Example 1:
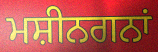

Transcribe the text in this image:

ਮਸ਼ੀਨਗਨਾਂ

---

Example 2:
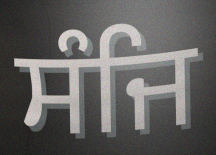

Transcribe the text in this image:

ਸੰਜਿ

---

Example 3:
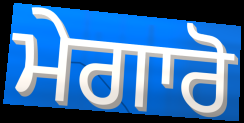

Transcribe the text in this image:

ਮੇਗਾਰੋ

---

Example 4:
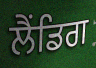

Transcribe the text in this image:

ਲੈਂਡਿਗ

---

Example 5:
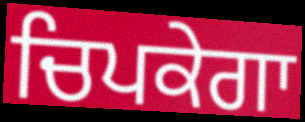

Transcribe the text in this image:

ਚਿਪਕੇਗਾ